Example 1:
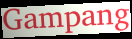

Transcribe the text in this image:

Gampang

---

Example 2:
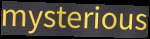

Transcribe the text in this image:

mysterious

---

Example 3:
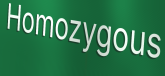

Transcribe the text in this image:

Homozygous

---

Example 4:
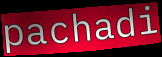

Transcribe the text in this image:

pachadi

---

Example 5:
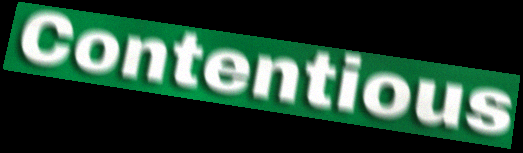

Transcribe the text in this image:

Contentious